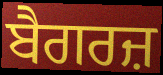
ਬੈਗਰਜ਼